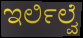
ಇರ್ಲಿಲ್ವೆ